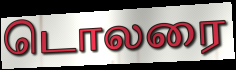
டொலரை